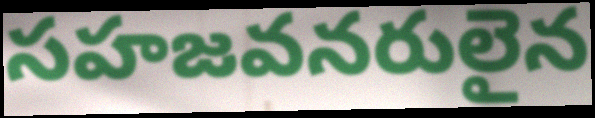
సహజవనరులైన